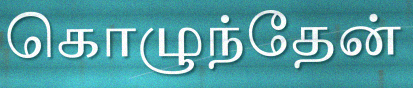
கொழுந்தேன்